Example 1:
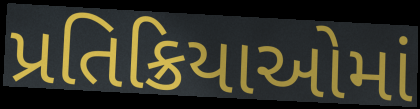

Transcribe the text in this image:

પ્રતિક્રિયાઓમાં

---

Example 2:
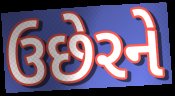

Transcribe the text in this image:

ઉછેરને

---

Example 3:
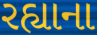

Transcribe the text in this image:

રહ્યાના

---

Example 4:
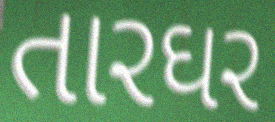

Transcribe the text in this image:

તારઘર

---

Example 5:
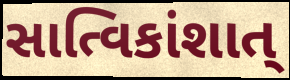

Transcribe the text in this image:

સાત્વિકાંશાત્